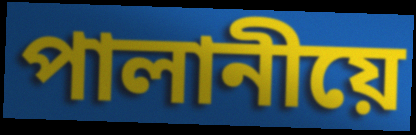
পালানীয়ে